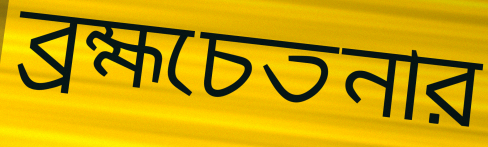
ব্রহ্মচেতনার